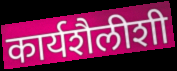
कार्यशैलीशी